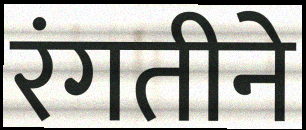
रंगतीने